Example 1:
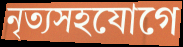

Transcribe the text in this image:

নৃত্যসহযোগে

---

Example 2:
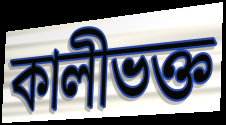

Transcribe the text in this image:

কালীভক্ত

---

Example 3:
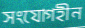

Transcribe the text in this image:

সংযোগহীন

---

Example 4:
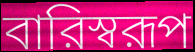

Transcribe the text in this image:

বারিস্বরূপ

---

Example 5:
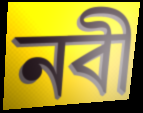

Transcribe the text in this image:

নবী